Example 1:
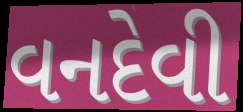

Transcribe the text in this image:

વનદેવી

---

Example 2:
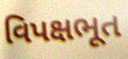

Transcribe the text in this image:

વિપક્ષભૂત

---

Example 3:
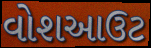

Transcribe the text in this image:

વોશઆઉટ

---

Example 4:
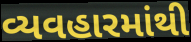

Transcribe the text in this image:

વ્યવહારમાંથી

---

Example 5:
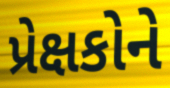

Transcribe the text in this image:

પ્રેક્ષકોને